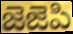
జెజెపి